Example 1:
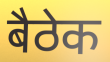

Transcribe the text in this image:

बैठेक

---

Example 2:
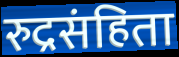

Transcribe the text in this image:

रुद्रसंहिता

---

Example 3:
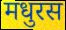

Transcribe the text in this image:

मधुरस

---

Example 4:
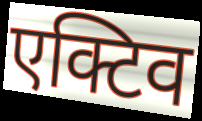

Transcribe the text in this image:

एक्टिव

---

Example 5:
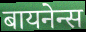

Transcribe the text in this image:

बायनेन्स